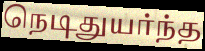
நெடிதுயர்ந்த